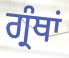
ਗ੍ਰੰਥਾਂ